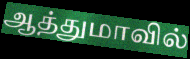
ஆத்துமாவில்